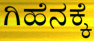
ಗಿಹೆನಕ್ಕೆ